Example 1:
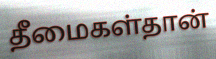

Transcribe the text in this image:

தீமைகள்தான்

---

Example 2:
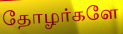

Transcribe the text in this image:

தோழர்களே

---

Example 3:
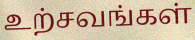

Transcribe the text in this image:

உற்சவங்கள்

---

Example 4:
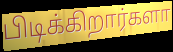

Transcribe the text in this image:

பிடிக்கிறார்களா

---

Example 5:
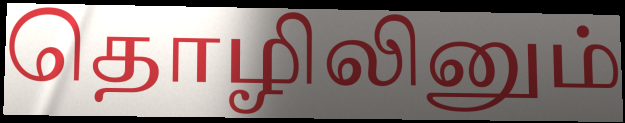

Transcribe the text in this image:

தொழிலினும்